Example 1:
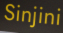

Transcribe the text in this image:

Sinjini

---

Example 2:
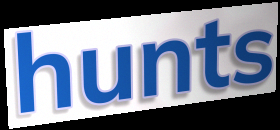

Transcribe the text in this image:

hunts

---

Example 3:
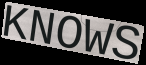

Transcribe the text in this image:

KNOWS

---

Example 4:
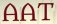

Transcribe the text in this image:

AAT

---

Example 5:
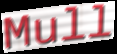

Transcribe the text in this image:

Mull